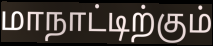
மாநாட்டிற்கும்